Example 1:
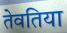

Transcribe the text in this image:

तेवतिया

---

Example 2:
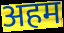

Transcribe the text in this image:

अहम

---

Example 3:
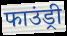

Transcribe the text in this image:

फाउंड्री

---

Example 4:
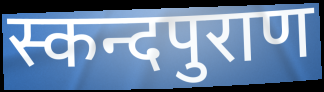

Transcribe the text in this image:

स्कन्दपुराण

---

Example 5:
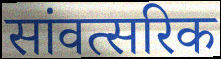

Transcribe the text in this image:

सांवत्सरिक